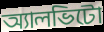
অ্যালভিটো